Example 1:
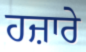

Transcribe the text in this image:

ਹਜ਼ਾਰੇ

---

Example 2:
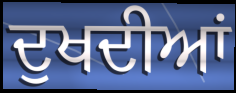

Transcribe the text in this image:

ਦੁਖਦੀਆਂ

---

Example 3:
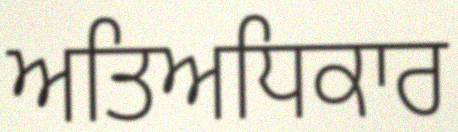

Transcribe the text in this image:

ਅਤਿਅਧਿਕਾਰ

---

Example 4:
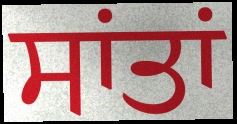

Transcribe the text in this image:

ਸਾਂਤਾਂ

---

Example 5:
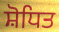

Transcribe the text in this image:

ਸ਼ੋਧਿਤ